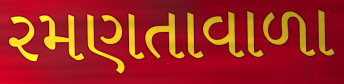
રમણતાવાળા